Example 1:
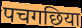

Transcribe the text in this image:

पचगछिया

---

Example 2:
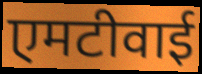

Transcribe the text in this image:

एमटीवाई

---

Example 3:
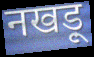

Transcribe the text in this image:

नखड़ू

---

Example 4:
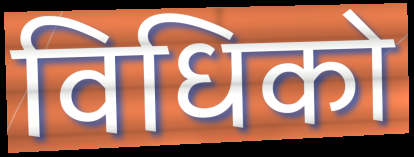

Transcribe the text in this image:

विधिको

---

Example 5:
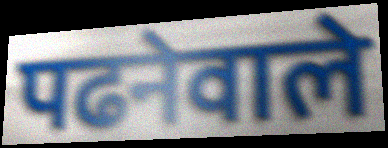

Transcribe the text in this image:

पढनेवाले